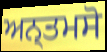
ਅਨ੍ਤਮਸੋ